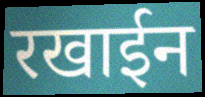
रखाईन